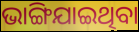
ଭାଙ୍ଗିଯାଇଥିବା